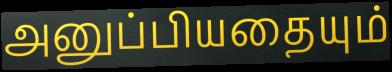
அனுப்பியதையும்